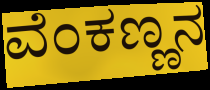
ವೆಂಕಣ್ಣನ